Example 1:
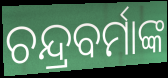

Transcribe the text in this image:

ଚନ୍ଦ୍ରବର୍ମାଙ୍କ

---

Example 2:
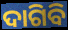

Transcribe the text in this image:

ଦାଗିବି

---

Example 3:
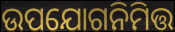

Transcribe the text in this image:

ଉପଯୋଗନିମିତ୍ତ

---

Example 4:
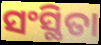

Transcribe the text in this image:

ସଂସ୍ଥିତା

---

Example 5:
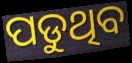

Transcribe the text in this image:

ପଡୁଥିବ